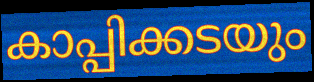
കാപ്പിക്കടയും